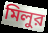
মিলুর